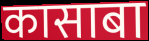
कासाबा